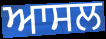
ਆਸਲ